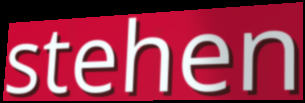
stehen